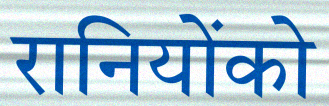
रानियोंको